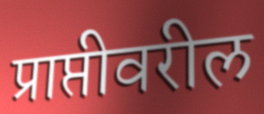
प्राप्तीवरील